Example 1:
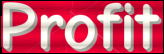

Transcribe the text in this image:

Profit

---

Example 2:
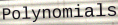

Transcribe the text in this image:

Polynomials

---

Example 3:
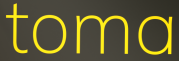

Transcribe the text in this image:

toma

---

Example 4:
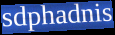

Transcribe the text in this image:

sdphadnis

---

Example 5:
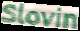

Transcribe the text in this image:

Slovin